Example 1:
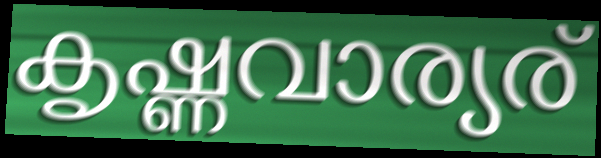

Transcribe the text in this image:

കൃഷ്ണവാര്യര്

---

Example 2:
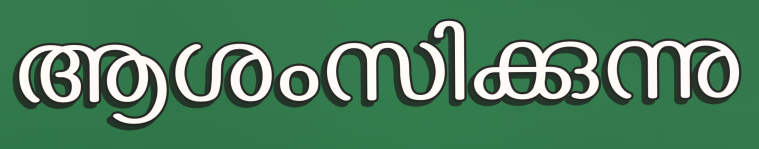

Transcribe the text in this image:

ആശംസിക്കുന്നു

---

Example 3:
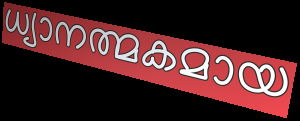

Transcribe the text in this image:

ധ്യാനത്മകമായ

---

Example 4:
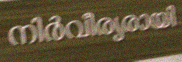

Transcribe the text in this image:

നിർവീര്യരായി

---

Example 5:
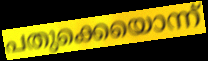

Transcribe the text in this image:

പതുക്കെയൊന്ന്